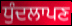
ਧੁੰਦਲਾਪਣ